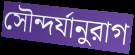
সৌন্দর্যানুরাগ